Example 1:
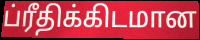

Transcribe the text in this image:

ப்ரீதிக்கிடமான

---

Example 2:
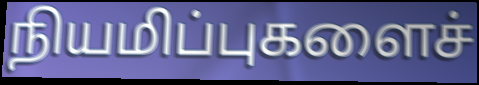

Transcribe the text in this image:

நியமிப்புகளைச்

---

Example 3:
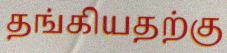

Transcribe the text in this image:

தங்கியதற்கு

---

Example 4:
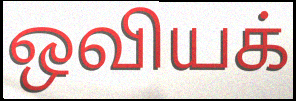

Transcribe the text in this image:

ஒவியக்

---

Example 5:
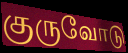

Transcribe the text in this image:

குருவோடு